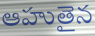
ఆహుతైన